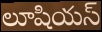
లూషియస్